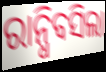
ରାନ୍ଧିବସିଲା